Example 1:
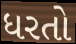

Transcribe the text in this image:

ધરતો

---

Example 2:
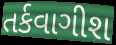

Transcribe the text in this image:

તર્કવાગીશ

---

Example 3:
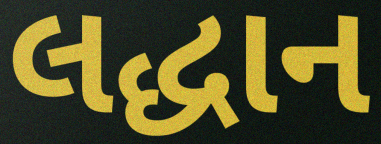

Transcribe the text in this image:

લદ્ધાન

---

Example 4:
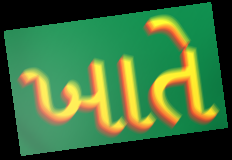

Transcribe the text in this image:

ખાતે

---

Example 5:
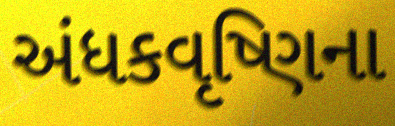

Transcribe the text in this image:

અંધકવૃષ્ણિના